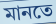
মানতে